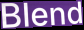
Blend